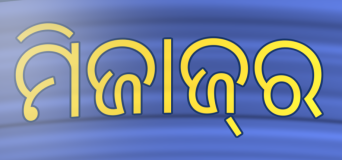
ମିଜାଜ୍‌ର